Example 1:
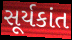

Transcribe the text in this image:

સૂર્યકાંત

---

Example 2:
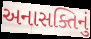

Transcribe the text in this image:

અનાસક્તિનું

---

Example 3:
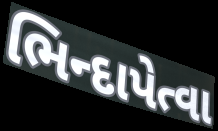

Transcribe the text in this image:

ભિન્દાપેત્વા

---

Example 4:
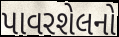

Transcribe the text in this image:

પાવરશેલનો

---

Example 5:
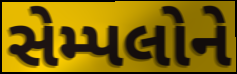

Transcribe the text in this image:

સેમ્પલોને